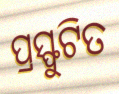
ପ୍ରସ୍ଫୁଟିତ